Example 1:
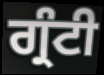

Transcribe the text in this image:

ਗ੍ਰੰਟੀ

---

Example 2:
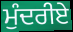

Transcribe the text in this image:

ਮੁੰਦਰੀਏ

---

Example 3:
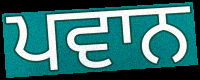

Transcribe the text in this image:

ਪਵਾਨ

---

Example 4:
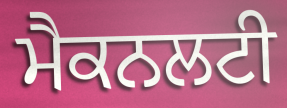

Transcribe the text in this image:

ਮੈਕਨਲਟੀ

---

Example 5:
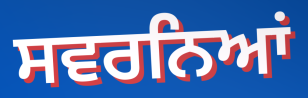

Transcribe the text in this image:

ਸਵਰਨਿਆਂ